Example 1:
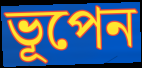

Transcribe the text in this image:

ভূপেন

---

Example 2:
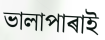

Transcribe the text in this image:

ভালাপাৰাই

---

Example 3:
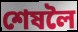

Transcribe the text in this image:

শেষলৈ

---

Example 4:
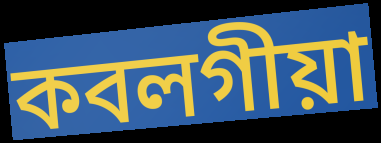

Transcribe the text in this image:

কবলগীয়া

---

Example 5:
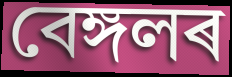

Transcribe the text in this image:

বেঙ্গলৰ